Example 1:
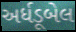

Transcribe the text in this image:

અર્ધડૂબેલ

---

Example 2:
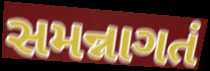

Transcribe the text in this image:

સમન્નાગતં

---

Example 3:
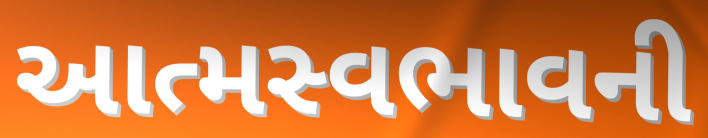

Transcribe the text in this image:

આત્મસ્વભાવની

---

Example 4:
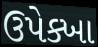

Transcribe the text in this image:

ઉપેક્ખા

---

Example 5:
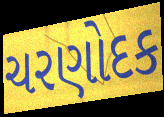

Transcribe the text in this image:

ચરણોદક